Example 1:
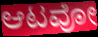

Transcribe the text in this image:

ಆಟವೋ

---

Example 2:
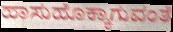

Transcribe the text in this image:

ಹಾಸುಹೊಕ್ಕಾಗುವಂತೆ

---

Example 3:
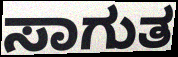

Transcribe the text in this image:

ಸಾಗುತ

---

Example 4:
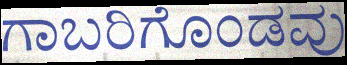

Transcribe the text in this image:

ಗಾಬರಿಗೊಂಡವು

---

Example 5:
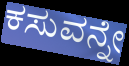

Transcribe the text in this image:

ಕಸುವನ್ನೇ